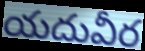
యదువీర